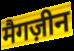
मैगज़ीन